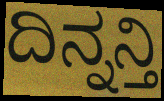
ದಿನ್ನನ್ತಿ